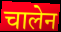
चालेन